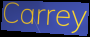
Carrey